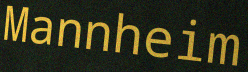
Mannheim